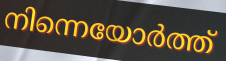
നിന്നെയോർത്ത്